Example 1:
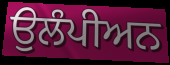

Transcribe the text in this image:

ਉੁਲੰਪੀਅਨ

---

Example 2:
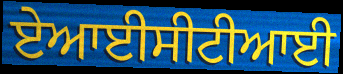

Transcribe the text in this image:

ਏਆਈਸੀਟੀਆਈ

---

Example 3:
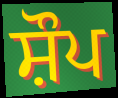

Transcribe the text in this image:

ਸ਼ੌਪ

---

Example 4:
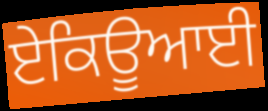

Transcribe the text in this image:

ਏਕਿਊਆਈ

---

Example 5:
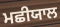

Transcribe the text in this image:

ਮਛੀਯਾਲ